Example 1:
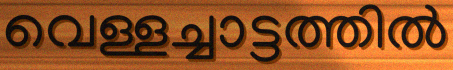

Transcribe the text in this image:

വെള്ളച്ചാട്ടത്തിൽ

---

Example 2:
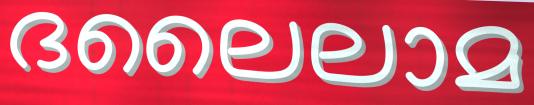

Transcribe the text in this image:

ദലൈലാമ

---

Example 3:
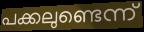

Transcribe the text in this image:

പക്കലുണ്ടെന്ന്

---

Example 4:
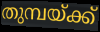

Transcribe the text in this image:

തുമ്പയ്ക്ക്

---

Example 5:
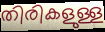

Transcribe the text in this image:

തിരികളുള്ള